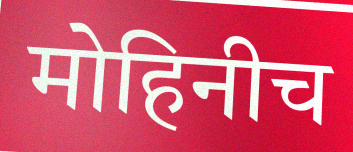
मोहिनीच